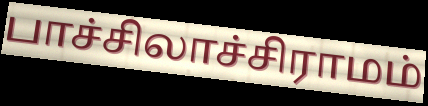
பாச்சிலாச்சிராமம்